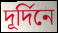
দূর্দিনে